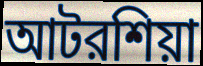
আটরশিয়া